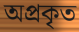
অপ্ৰকৃত